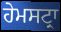
ਹੇਮਸਟ੍ਰਾ